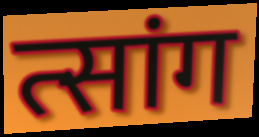
त्सांग